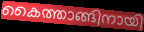
കൈത്താങ്ങിനായി